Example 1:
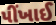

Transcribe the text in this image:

પીંખાઈ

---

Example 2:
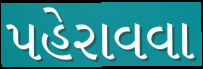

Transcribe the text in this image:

પહેરાવવા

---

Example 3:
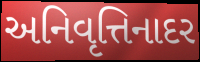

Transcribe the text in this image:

અનિવૃત્તિનાદર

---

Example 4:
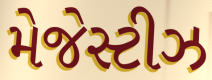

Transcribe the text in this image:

મેજેસ્ટીઝ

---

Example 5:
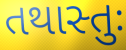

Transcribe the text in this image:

તથાસ્તુઃ